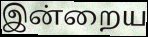
இன்றைய